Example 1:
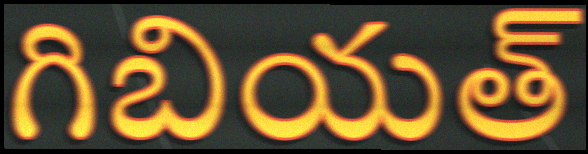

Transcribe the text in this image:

గిబియత్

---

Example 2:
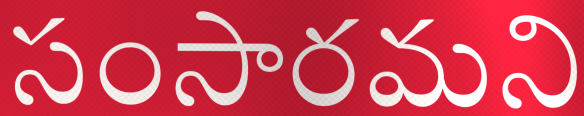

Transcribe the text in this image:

సంసారమని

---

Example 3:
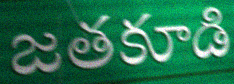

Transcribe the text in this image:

జతకూడి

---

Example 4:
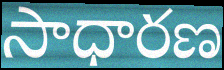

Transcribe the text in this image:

సాధారణ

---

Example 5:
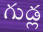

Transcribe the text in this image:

గుడ్ల